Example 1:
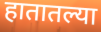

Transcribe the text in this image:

हातातल्या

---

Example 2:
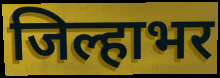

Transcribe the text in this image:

जिल्हाभर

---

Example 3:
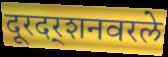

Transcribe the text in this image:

दूरदर्शनवरले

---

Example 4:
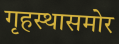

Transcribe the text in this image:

गृहस्थासमोर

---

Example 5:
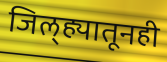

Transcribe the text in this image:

जिल्ह्यातूनही